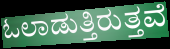
ಓಲಾಡುತ್ತಿರುತ್ತವೆ